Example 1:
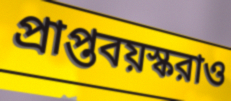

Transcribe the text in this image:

প্রাপ্তবয়স্করাও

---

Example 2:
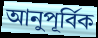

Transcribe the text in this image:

আনুপূর্বিক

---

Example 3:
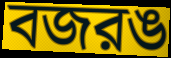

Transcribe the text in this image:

বজরঙ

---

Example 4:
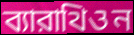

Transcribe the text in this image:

ব্যারাথিওন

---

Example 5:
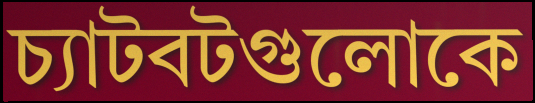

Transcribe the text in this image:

চ্যাটবটগুলোকে